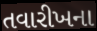
તવારીખના